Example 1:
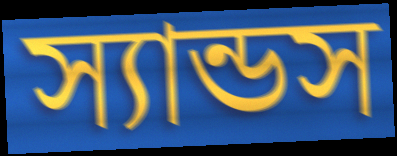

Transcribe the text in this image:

স্যান্ডস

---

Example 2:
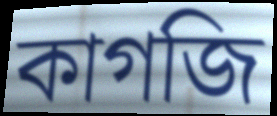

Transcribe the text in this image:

কাগজি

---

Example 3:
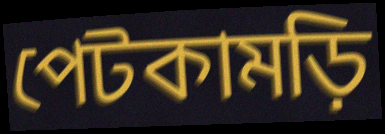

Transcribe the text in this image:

পেটকামড়ি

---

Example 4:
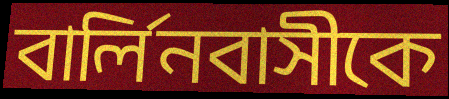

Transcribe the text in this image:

বার্লিনবাসীকে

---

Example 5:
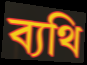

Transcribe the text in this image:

ব্যথি